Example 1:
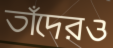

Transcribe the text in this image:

তাঁদেরও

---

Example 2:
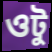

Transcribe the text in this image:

ওটু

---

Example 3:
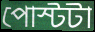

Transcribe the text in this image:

পোস্টটা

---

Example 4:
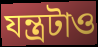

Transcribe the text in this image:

যন্ত্রটাও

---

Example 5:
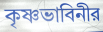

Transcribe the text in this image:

কৃষ্ণভাবিনীর